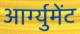
आर्ग्युमेंट